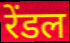
रेंडल